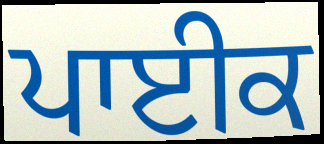
ਪਾਈਕ